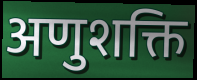
अणुशक्ति